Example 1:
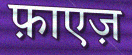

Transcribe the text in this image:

फ़ाएज़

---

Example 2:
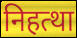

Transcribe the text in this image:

निहत्था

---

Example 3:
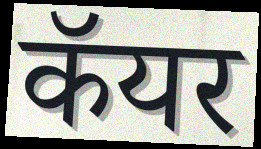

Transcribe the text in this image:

कॅयर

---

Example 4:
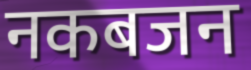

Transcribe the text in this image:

नकबजन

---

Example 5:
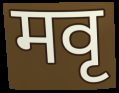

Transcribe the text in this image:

मवृ